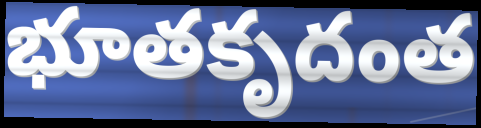
భూతకృదంత